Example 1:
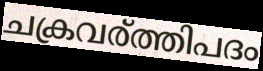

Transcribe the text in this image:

ചക്രവര്ത്തിപദം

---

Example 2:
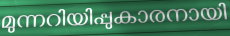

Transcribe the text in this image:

മുന്നറിയിപ്പുകാരനായി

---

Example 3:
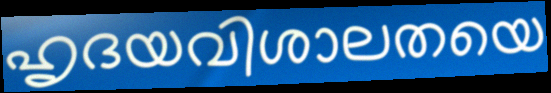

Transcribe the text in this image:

ഹൃദയവിശാലതയെ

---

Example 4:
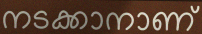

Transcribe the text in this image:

നടക്കാനാണ്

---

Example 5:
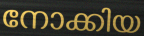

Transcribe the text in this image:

നോക്കിയ